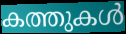
കത്തുകൾ